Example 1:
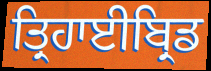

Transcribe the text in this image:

ਤ੍ਰਿਹਾਈਬ੍ਰਿਡ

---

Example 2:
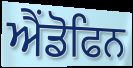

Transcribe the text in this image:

ਐਂਡੋਫਿਨ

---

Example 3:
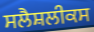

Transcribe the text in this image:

ਸਲੈਸ਼ਲੀਕਸ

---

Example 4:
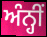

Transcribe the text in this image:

ਅੰਨ੍ਹੀਂ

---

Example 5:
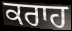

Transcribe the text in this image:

ਕਰਾਹ